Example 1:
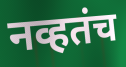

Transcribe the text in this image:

नव्हतंच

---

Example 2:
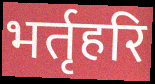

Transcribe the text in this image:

भर्तृहरि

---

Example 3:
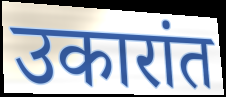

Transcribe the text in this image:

उकारांत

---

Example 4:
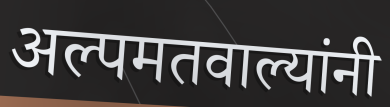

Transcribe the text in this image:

अल्पमतवाल्यांनी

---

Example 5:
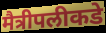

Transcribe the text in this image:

मैत्रीपलीकडे